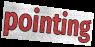
pointing